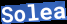
Solea